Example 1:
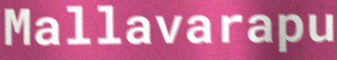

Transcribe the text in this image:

Mallavarapu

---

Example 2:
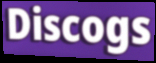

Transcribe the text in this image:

Discogs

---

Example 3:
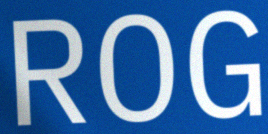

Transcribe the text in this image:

ROG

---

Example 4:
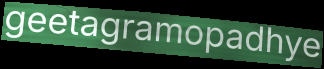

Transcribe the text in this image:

geetagramopadhye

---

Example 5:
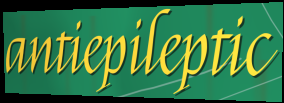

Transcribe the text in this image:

antiepileptic